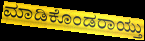
ಮಾಡಿಕೊಂಡರಾಯ್ತು